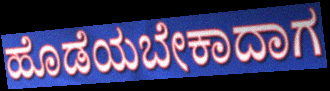
ಹೊಡೆಯಬೇಕಾದಾಗ